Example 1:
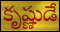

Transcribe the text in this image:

కృష్ణుడే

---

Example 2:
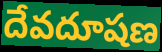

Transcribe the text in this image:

దేవదూషణ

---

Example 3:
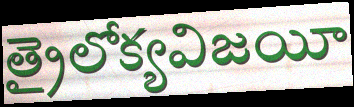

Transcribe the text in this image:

త్రైలోక్యవిజయీ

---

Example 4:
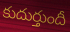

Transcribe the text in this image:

కుదుర్తుందీ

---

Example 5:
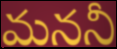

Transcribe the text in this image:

మననీ